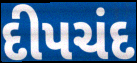
દીપચંદ